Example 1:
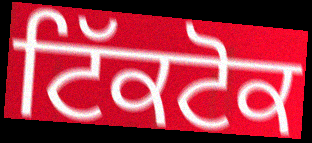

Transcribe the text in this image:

ਟਿੱਕਟੋਕ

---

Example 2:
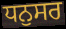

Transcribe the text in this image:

ਧਨੁਸਰ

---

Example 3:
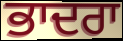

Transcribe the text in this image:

ਭਾਦਰਾ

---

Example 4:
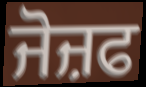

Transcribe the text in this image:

ਜੋਜ਼ਫ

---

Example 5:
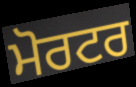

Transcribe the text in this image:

ਮੋਰਟਰ